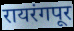
रायरंगपूर